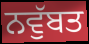
ਨਵੁੱਬਤ